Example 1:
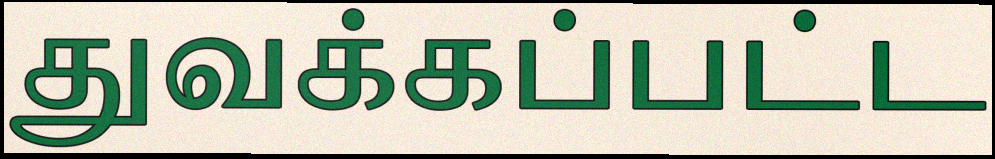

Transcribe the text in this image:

துவக்கப்பட்ட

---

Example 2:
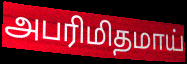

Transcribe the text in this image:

அபரிமிதமாய்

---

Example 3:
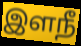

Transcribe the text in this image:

இளநீ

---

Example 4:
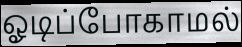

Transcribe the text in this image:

ஓடிப்போகாமல்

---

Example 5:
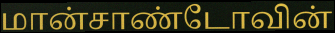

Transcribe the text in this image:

மான்சாண்டோவின்